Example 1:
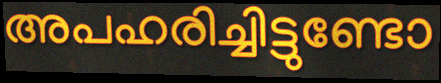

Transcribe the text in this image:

അപഹരിച്ചിട്ടുണ്ടോ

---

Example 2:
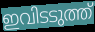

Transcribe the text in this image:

ഇവിടടുത്ത്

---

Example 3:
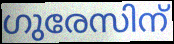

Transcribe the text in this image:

ഗുരേസിന്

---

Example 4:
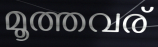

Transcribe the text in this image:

മൂത്തവര്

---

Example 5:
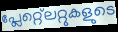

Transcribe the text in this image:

പ്ലേറ്റ്ലെറ്റുകളുടെ